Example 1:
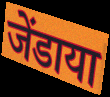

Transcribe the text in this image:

जेंडाया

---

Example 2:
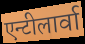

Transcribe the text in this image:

एन्टीलार्वा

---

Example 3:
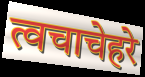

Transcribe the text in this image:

त्वचाचेहरे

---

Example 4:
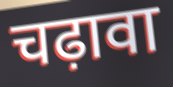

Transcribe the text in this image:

चढ़ावा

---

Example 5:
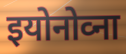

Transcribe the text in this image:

इयोनोव्ना